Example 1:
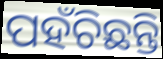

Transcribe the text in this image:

ପହଁଚିଛନ୍ତି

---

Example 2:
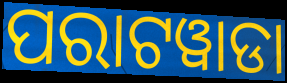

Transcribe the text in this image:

ପରାଟୱାଡା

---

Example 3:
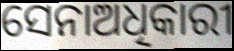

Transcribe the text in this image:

ସେନାଅଧିକାରୀ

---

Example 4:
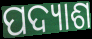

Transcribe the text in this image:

ପଦ୍ୟାଶ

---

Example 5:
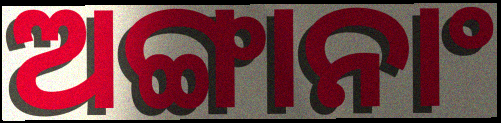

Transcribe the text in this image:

ଅଙ୍ଗାନାଂ